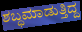
ಶಬ್ಧಮಾಡುತ್ತಿದ್ದ